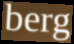
berg